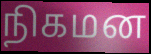
நிகமன